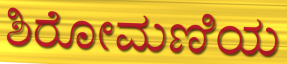
ಶಿರೋಮಣಿಯ